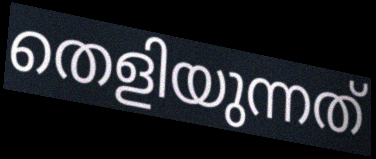
തെളിയുന്നത്